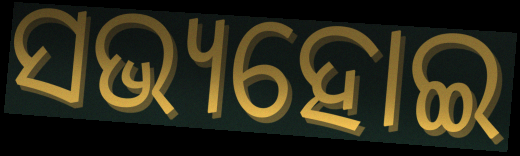
ସଭ୍ୟହୋଇ